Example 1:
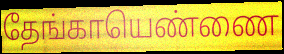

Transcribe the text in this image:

தேங்காயெண்ணை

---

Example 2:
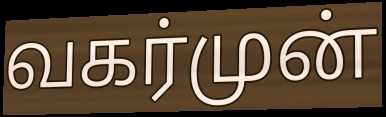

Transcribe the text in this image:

வகர்முன்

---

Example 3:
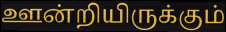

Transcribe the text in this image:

ஊன்றியிருக்கும்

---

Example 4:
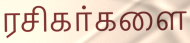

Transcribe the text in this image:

ரசிகர்களை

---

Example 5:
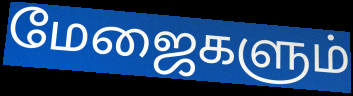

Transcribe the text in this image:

மேஜைகளும்